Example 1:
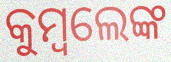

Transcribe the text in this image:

କୁମ୍ବଲେଙ୍କ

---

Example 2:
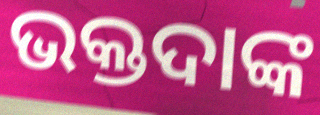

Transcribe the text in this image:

ଭକ୍ତଦାଙ୍କ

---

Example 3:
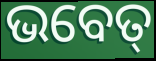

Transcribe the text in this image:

ଭବେତ୍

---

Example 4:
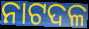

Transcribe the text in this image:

ନାଟଦଳ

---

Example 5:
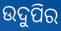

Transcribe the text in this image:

ଉଦୁପିର